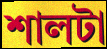
শালটা